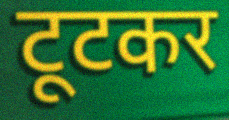
टूटकर